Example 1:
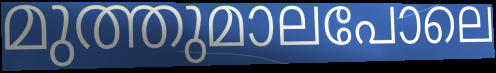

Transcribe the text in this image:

മുത്തുമാലപോലെ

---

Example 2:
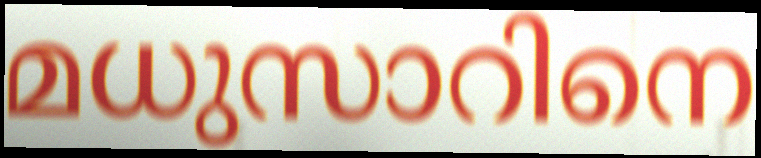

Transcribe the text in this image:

മധുസാറിനെ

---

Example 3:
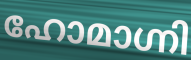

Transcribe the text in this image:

ഹോമാഗ്നി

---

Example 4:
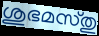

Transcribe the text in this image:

ശുഭമസ്തു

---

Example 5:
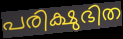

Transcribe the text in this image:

പരിക്ഷുഭിത